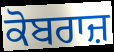
ਕੋਬਰਾਜ਼